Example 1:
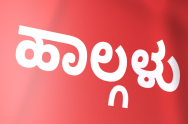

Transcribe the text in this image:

ಹಾಲ್ಗಳು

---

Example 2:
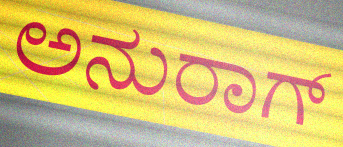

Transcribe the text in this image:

ಅನುರಾಗ್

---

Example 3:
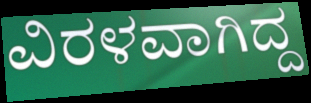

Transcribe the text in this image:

ವಿರಳವಾಗಿದ್ದ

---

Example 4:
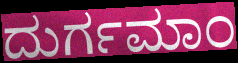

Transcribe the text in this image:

ದುರ್ಗಮಾಂ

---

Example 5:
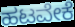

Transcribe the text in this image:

ಹಟವೇಕೆ